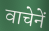
वाचेनें